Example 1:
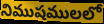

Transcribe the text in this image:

నిముషములలో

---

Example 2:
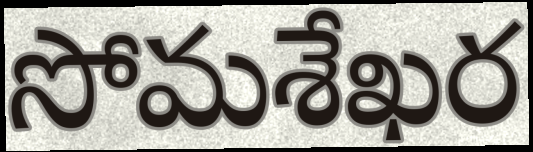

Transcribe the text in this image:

సోమశేఖర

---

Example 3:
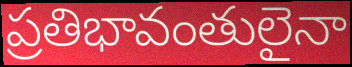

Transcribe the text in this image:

ప్రతిభావంతులైనా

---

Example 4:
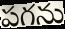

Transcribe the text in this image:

పగను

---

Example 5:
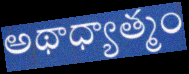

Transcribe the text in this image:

అథాధ్యాత్మం